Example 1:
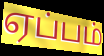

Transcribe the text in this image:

ஏப்பம்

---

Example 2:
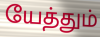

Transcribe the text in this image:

யேத்தும்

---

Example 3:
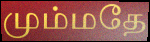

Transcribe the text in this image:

மும்மதே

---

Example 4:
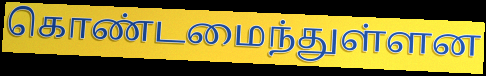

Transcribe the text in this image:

கொண்டமைந்துள்ளன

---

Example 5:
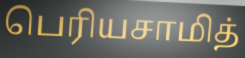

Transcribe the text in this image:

பெரியசாமித்